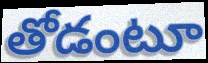
తోడంటూ